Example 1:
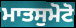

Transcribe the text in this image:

ਮਾਤਸੁਮੋਟੋ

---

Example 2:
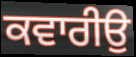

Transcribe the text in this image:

ਕਵਾਰੀਉ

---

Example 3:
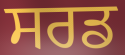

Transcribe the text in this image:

ਸਰਡ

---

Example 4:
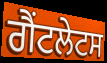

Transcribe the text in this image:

ਗੈਂਟਲੇਟਸ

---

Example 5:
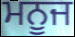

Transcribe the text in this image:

ਮਨੂਜ